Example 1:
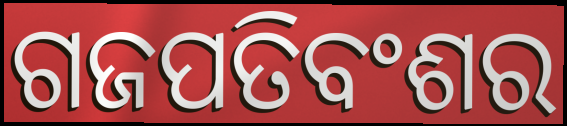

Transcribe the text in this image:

ଗଜପତିବଂଶର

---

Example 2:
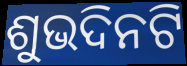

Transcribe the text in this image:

ଶୁଭଦିନଟି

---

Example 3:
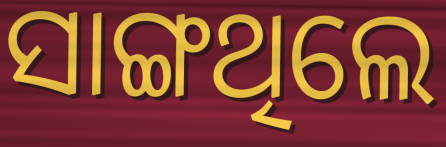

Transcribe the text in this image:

ସାଙ୍ଗଥିଲେ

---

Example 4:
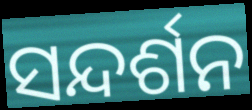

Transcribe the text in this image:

ସନ୍ଦର୍ଶନ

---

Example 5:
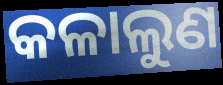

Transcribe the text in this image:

କଳାଲୁଣ